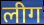
लीग